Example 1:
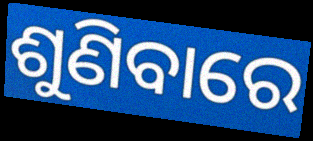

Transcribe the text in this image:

ଶୁଣିବାରେ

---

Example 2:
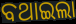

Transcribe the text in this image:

ବଥାଇଲା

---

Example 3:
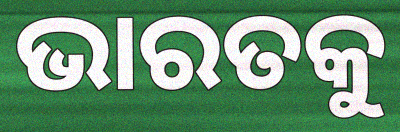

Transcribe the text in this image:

ଭାରତକୁ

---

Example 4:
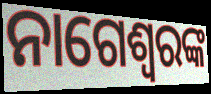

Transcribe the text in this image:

ନାଗେଶ୍ୱରଙ୍କ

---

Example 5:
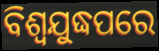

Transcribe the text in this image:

ବିଶ୍ୱଯୁଦ୍ଧପରେ